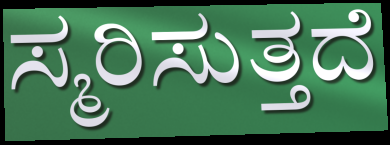
ಸ್ಮರಿಸುತ್ತದೆ